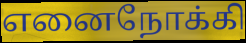
எனைநோக்கி